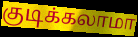
குடிக்கலாமா